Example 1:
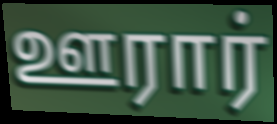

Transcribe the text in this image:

ஊரார்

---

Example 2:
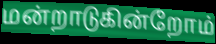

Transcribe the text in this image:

மன்றாடுகின்றோம்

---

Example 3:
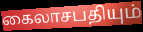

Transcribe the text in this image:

கைலாசபதியும்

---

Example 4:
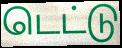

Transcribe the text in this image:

டெட்டு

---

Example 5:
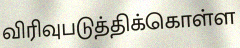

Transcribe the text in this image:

விரிவுபடுத்திக்கொள்ள